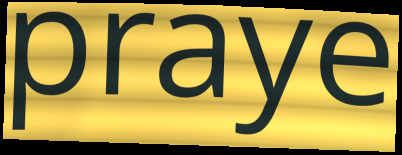
praye